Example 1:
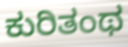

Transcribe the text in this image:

ಕುರಿತಂಥ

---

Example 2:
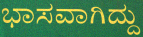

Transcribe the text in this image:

ಭಾಸವಾಗಿದ್ದು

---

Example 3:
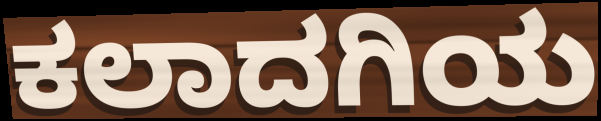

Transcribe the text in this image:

ಕಲಾದಗಿಯ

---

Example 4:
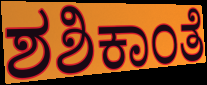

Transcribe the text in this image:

ಶಶಿಕಾಂತೆ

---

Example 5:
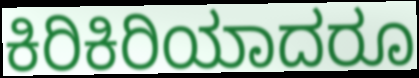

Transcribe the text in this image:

ಕಿರಿಕಿರಿಯಾದರೂ